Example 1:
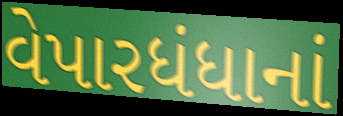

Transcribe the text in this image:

વેપારધંધાનાં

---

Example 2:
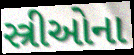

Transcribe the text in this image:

સ્ત્રીઓના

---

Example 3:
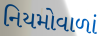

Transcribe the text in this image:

નિયમોવાળાં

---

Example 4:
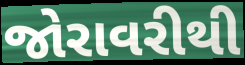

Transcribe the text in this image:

જોરાવરીથી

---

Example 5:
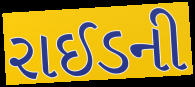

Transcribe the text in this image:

રાઈડની